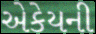
એકેયની